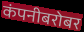
कंपनीबरोबर